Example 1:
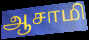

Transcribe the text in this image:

ஆசாமி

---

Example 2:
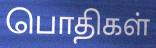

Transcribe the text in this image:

பொதிகள்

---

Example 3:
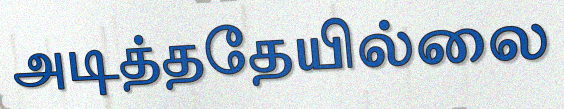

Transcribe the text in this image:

அடித்ததேயில்லை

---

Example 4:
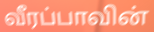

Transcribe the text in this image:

வீரப்பாவின்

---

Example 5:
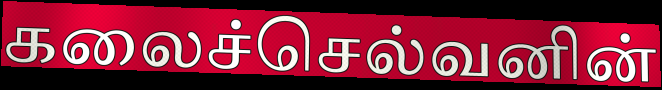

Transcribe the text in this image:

கலைச்செல்வனின்